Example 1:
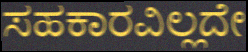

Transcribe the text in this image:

ಸಹಕಾರವಿಲ್ಲದೇ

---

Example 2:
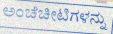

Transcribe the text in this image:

ಅಂಚೆಚೀಟಿಗಳನ್ನು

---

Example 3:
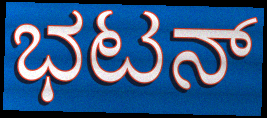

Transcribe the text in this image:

ಭಟನ್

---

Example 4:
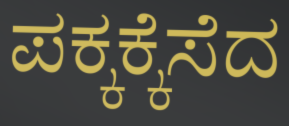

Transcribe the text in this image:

ಪಕ್ಕಕ್ಕೆಸೆದ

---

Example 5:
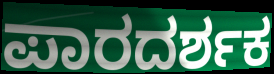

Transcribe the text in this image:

ಪಾರದರ್ಶಕ